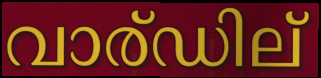
വാര്ഡില്